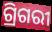
ଗ୍ରିଗରୀ